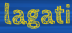
lagati